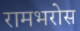
रामभरोस